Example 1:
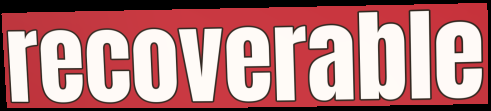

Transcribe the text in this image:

recoverable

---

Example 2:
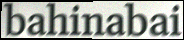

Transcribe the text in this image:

bahinabai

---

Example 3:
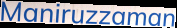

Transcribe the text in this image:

Maniruzzaman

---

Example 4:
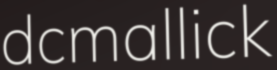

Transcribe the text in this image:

dcmallick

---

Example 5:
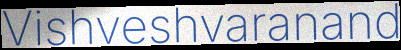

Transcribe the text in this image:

Vishveshvaranand